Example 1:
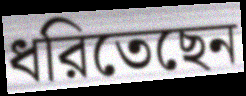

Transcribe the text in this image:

ধরিতেছেন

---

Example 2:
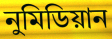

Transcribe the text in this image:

নুমিডিয়ান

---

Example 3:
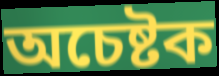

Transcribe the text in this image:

অচেষ্টক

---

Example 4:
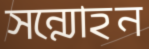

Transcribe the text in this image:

সন্মোহন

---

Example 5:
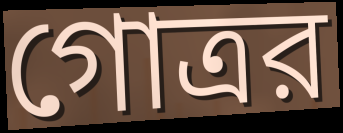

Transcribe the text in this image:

গোত্রর